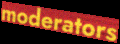
moderators